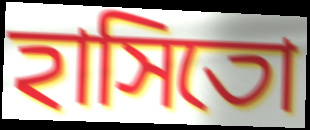
হাসিতো